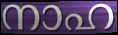
നാഹ